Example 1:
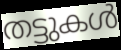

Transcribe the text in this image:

തട്ടുകൾ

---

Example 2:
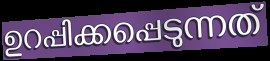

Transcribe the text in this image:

ഉറപ്പിക്കപ്പെടുന്നത്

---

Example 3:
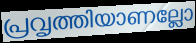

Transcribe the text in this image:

പ്രവൃത്തിയാണല്ലോ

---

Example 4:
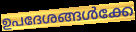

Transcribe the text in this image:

ഉപദേശങ്ങൾക്കേ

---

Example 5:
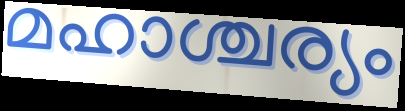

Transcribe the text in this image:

മഹാശ്ചര്യം